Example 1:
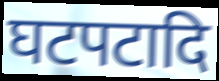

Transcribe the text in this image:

घटपटादि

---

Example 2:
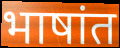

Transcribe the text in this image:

भाषांत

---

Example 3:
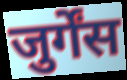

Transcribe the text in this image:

जुर्गेंस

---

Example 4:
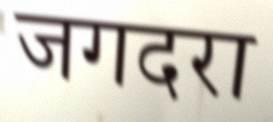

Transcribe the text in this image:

जगदरा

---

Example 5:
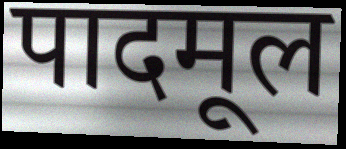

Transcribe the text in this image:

पादमूल